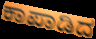
ಕಾಪಾಡಿದ